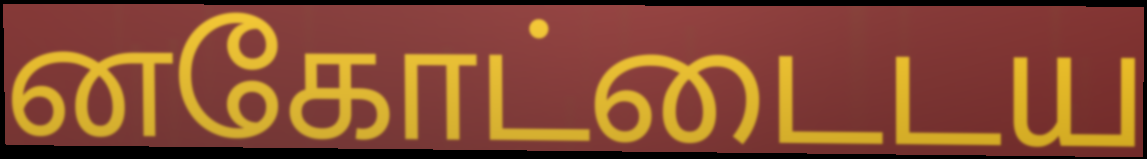
னகோட்டைடய